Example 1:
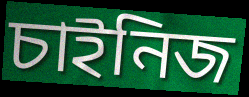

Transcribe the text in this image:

চাইনিজ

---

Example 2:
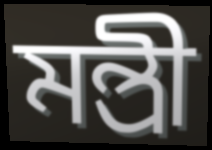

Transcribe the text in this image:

মন্ত্ৰী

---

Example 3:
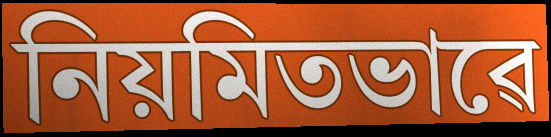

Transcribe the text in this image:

নিয়মিতভাৱে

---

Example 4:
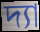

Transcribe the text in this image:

দ্যা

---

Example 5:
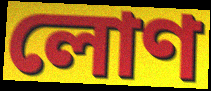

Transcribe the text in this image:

লোণ